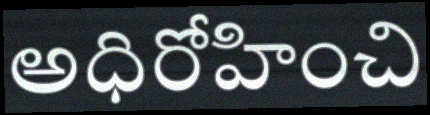
అధిరోహించి